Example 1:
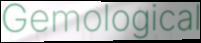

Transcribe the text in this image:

Gemological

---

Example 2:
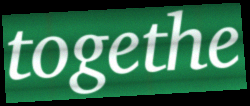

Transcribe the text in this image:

togethe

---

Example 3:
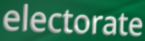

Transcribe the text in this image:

electorate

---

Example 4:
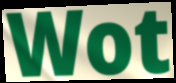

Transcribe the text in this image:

Wot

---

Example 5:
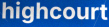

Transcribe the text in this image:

highcourt